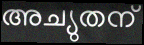
അച്യുതന്